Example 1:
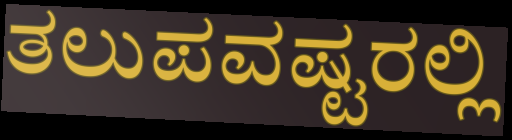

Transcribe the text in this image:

ತಲುಪವಷ್ಟರಲ್ಲಿ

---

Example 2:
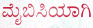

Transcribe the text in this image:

ಮೈಬಿಸಿಯಾಗಿ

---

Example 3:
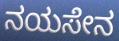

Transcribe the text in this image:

ನಯಸೇನ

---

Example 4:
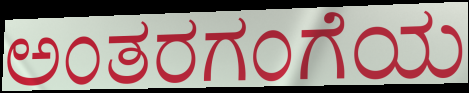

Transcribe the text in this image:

ಅಂತರಗಂಗೆಯ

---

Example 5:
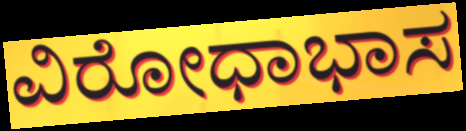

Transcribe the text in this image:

ವಿರೋಧಾಭಾಸ